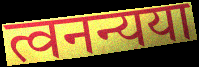
त्वनन्यया